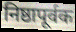
निष्ठापूर्वक